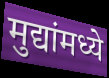
मुद्यांमध्ये